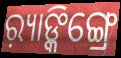
ର଼୍ୟାଙ୍କିଙ୍ଗ୍ରେ